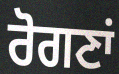
ਰੋਗਣਾਂ